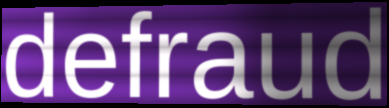
defraud